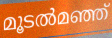
മൂടൽമഞ്ഞ്